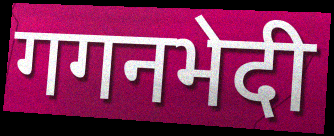
गगनभेदी